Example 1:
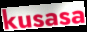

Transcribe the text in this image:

kusasa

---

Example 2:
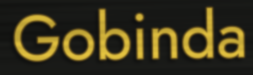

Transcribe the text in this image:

Gobinda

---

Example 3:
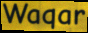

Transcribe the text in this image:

Waqar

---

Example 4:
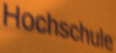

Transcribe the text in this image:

Hochschule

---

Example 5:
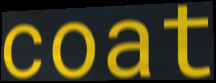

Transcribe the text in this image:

coat